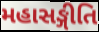
મહાસઙ્ગીતિ